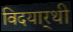
विदयार्थी